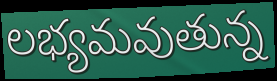
లభ్యమవుతున్న